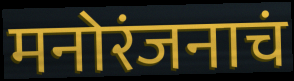
मनोरंजनाचं